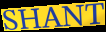
SHANT